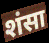
शंसा